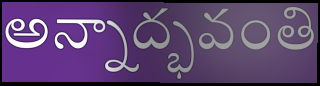
అన్నాద్భవంతి